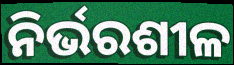
ନିର୍ଭରଶୀଳ